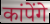
कांपेंगे